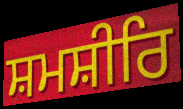
ਸ਼ਮਸ਼ੀਰਿ